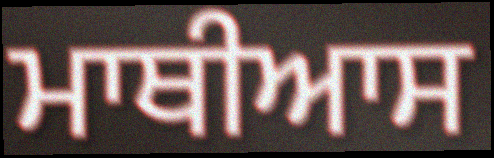
ਮਾਥੀਆਸ